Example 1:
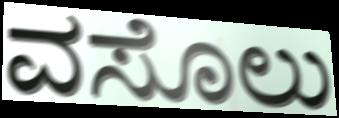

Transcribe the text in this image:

ವಸೊಲು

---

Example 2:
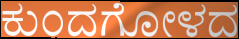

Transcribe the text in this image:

ಕುಂದಗೋಳದ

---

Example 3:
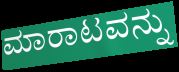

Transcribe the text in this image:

ಮಾರಾಟವನ್ನು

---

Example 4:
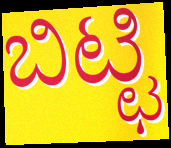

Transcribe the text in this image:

ಬಿಟ್ಟಿ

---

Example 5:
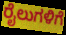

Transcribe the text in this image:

ರೈಲುಗಳಿಗೆ